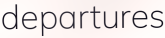
departures